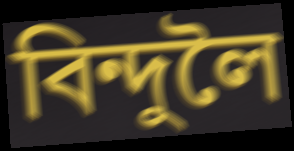
বিন্দুলৈ